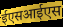
ईएसआईएस